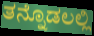
ತನ್ನೊಡಲಲ್ಲಿ